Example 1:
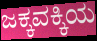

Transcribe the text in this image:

ಜಕ್ಕವಕ್ಕಿಯ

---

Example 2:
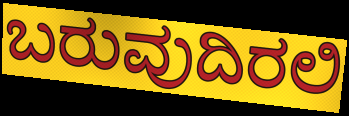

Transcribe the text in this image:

ಬರುವುದಿರಲಿ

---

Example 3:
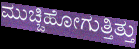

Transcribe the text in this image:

ಮುಚ್ಚಿಹೋಗುತ್ತಿತ್ತು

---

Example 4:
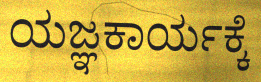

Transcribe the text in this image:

ಯಜ್ಞಕಾರ್ಯಕ್ಕೆ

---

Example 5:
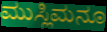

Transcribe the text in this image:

ಮುಸ್ಲಿಮನೂ